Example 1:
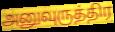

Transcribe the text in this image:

அனுவுருத்திர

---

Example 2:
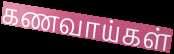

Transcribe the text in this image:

கணவாய்கள்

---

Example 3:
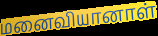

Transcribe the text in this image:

மனைவியானாள்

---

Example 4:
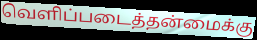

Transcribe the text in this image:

வெளிப்படைத்தன்மைக்கு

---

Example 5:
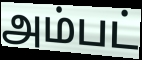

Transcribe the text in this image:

அம்பட்